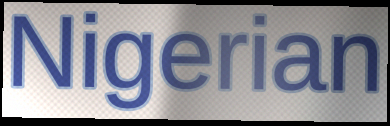
Nigerian